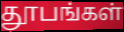
தூபங்கள்